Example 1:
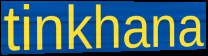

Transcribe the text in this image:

tinkhana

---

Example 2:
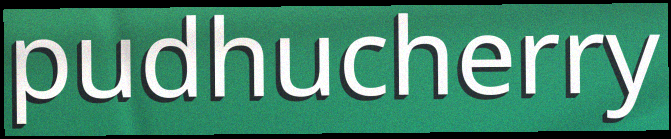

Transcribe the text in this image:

pudhucherry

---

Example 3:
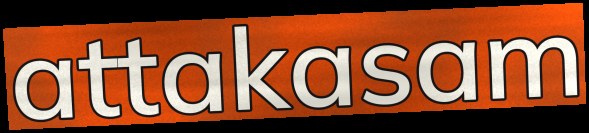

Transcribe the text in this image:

attakasam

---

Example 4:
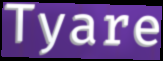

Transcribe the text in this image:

Tyare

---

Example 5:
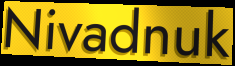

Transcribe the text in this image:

Nivadnuk